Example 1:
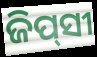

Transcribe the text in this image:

ଜିପ୍‍ସୀ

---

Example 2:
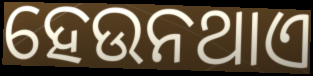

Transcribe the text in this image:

ହେଉନଥାଏ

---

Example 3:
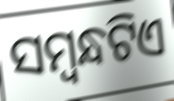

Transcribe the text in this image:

ସମ୍ବନ୍ଧଟିଏ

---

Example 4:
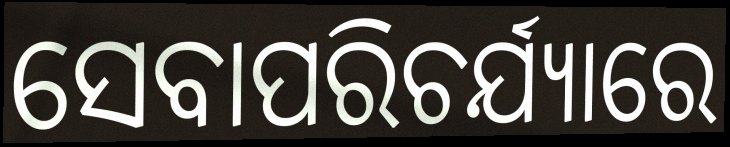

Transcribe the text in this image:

ସେବାପରିଚର୍ଯ୍ୟାରେ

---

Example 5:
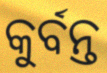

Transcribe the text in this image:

କୁର୍ବନ୍ତ